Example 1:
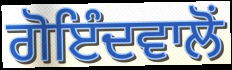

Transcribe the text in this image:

ਗੋਇੰਦਵਾਲੋਂ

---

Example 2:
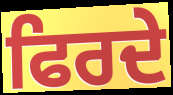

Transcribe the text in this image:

ਫਿਰਦੇ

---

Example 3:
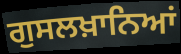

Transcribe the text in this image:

ਗੁਸਲਖ਼ਾਨਿਆਂ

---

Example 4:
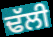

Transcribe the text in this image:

ਢੱਲੀ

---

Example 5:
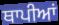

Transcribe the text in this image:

ਥਾਪੀਆਂ